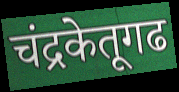
चंद्रकेतूगढ